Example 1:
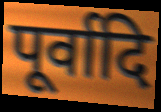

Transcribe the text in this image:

पूर्वादि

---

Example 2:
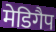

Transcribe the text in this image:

मेडिगैप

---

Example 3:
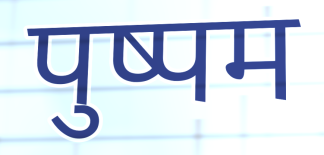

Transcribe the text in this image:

पुष्पम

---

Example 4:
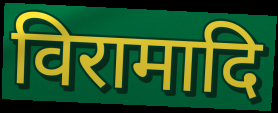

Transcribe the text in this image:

विरामादि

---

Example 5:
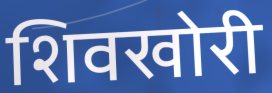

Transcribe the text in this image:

शिवखोरी